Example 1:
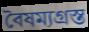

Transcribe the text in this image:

বৈষম্যগ্রস্ত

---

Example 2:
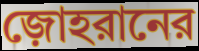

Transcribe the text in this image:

জ়োহরানের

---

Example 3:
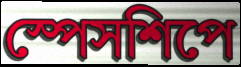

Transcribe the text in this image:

স্পেসশিপে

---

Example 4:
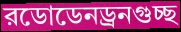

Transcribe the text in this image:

রডোডেনড্রনগুচ্ছ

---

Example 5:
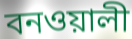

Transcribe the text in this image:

বনওয়ালী